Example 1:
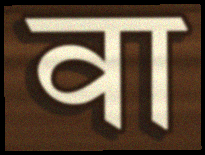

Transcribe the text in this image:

वा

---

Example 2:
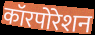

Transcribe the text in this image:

कॉरपोरेशन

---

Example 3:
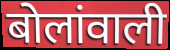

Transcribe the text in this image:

बोलांवाली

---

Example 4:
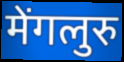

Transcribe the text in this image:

मेंगलुरु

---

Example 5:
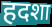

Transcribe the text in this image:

हदशा